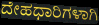
ದೇಹಧಾರಿಗಳಾಗಿ